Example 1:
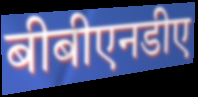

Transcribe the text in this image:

बीबीएनडीए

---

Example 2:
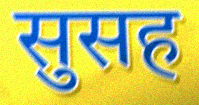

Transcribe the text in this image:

सुसह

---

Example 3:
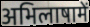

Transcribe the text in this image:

अभिलाषामें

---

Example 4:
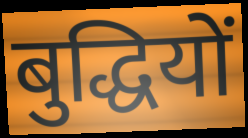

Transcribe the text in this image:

बुद्धियों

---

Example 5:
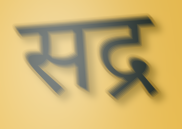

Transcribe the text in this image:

सद्र